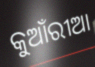
କୁଆଁରୀଆ